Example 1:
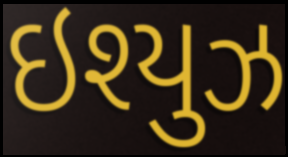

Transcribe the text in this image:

ઇશ્યુઝ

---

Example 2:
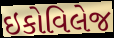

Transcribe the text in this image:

ઇકોવિલેજ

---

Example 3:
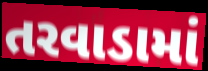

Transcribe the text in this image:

તરવાડામાં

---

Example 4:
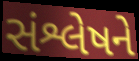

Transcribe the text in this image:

સંશ્લેષને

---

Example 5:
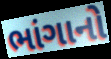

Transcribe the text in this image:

ભાંગાનો